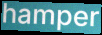
hamper